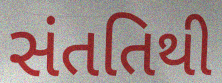
સંતતિથી